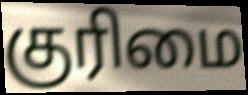
குரிமை